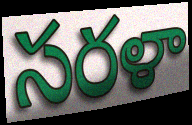
సరళా